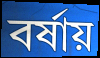
বর্ষায়